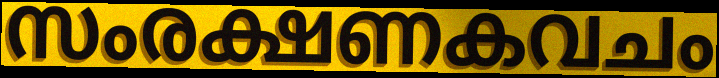
സംരക്ഷണകവചം